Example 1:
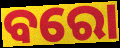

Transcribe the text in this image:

ବରୋ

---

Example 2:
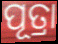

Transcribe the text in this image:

ପୂତ୍ରା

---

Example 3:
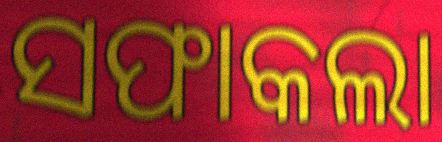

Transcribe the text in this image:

ସଫାକଲା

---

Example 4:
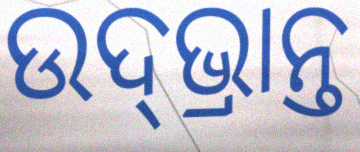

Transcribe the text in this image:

ଉଦ୍‌ଭ୍ରାନ୍ତ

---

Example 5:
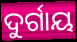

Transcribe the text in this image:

ଦୁର୍ଗାୟ